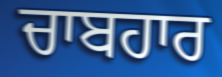
ਚਾਬਹਾਰ